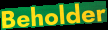
Beholder